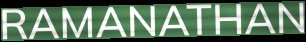
RAMANATHAN